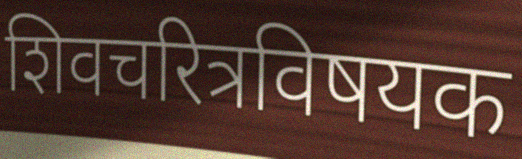
शिवचरित्रविषयक